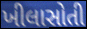
ખીલાસોતી